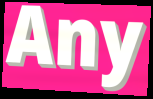
Any